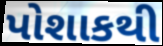
પોશાકથી